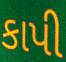
કાપી